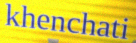
khenchati